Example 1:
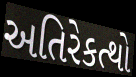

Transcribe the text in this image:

અતિરેકત્થો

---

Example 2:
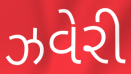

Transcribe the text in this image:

ઝવેરી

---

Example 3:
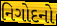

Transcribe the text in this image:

નિગોદનો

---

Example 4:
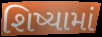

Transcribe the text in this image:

શિષ્યામાં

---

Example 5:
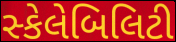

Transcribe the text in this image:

સ્કેલેબિલિટી